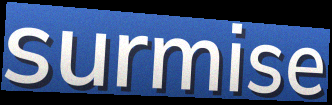
surmise